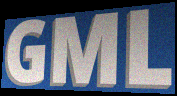
GML